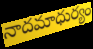
నాదమాధుర్యం